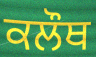
ਕਲੌਥ